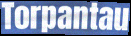
Torpantau